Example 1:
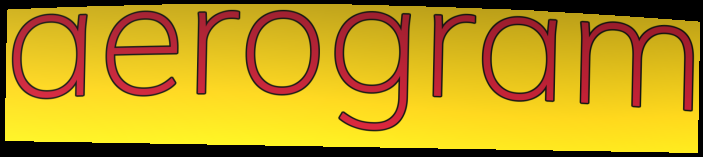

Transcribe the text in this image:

aerogram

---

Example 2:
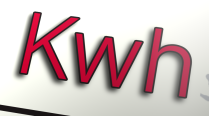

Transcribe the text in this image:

Kwh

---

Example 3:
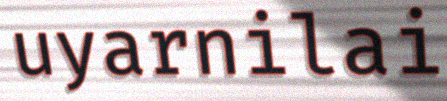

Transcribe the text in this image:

uyarnilai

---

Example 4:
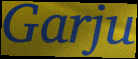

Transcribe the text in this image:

Garju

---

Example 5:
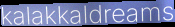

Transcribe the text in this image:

kalakkaldreams